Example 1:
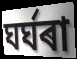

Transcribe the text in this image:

ঘৰ্ঘৰা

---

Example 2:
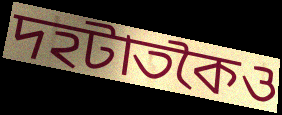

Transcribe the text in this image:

দহটাতকৈও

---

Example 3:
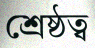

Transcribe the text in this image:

শ্ৰেষ্ঠত্ব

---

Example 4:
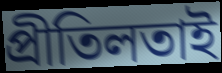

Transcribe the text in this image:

প্ৰীতিলতাই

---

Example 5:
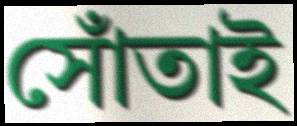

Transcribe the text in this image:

সোঁতাই